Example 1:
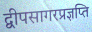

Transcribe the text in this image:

द्वीपसागरप्रज्ञप्ति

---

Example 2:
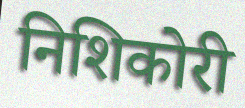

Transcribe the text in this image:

निशिकोरी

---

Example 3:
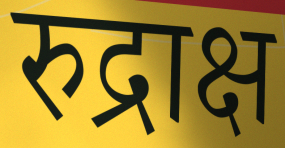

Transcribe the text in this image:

रुद्राक्ष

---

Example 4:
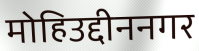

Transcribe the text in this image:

मोहिउद्दीननगर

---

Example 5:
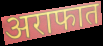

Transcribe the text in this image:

अराफात